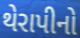
થેરાપીનો